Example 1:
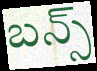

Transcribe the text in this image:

బన్స్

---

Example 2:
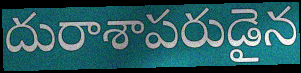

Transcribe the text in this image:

దురాశాపరుడైన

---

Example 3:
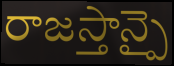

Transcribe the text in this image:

రాజస్తాన్పై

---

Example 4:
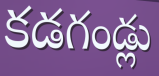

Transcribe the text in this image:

కడగండ్లు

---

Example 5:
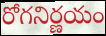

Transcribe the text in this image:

రోగనిర్ణయం